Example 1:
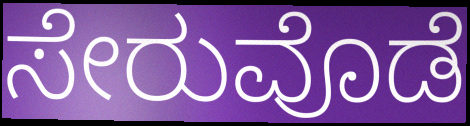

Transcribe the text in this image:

ಸೇರುವೊಡೆ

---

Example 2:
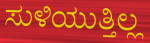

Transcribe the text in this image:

ಸುಳಿಯುತ್ತಿಲ್ಲ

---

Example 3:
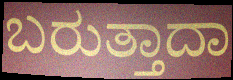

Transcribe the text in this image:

ಬರುತ್ತಾದಾ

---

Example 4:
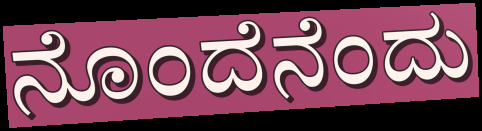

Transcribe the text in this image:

ನೊಂದೆನೆಂದು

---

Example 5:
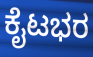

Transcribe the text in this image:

ಕೈಟಭರ